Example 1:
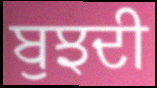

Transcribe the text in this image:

ਬੁਝਦੀ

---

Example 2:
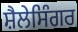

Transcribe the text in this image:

ਸ਼ੈਲੇਸਿੰਗਰ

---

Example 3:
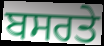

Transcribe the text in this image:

ਬਸਰਤੇ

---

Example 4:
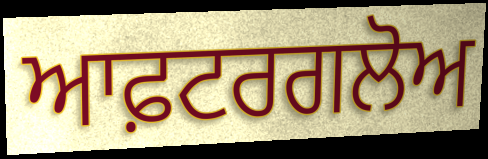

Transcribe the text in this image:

ਆਫ਼ਟਰਗਲੋਅ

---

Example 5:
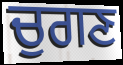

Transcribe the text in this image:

ਚੁਗਣ